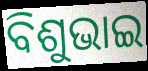
ବିଶୁଭାଇ